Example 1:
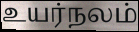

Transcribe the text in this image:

உயர்நலம்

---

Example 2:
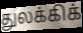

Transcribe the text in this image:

துலக்கிக்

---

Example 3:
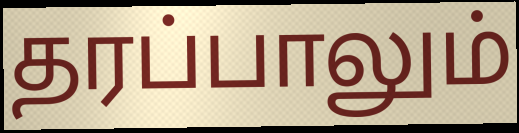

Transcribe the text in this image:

தரப்பாலும்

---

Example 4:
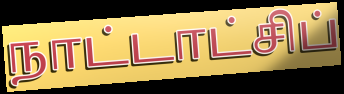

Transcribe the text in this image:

நாட்டாட்சிப்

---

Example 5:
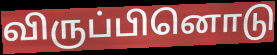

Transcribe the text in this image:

விருப்பினொடு